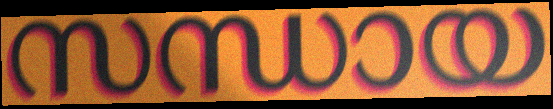
സന്ധായ